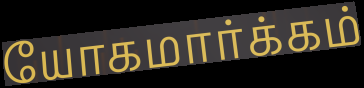
யோகமார்க்கம்